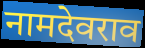
नामदेवराव